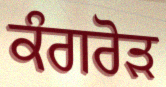
ਕੰਗਰੋੜ